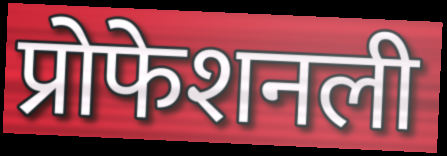
प्रोफेशनली